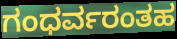
ಗಂಧರ್ವರಂತಹ